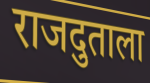
राजदुताला